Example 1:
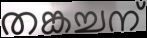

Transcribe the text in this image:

തങ്കച്ചന്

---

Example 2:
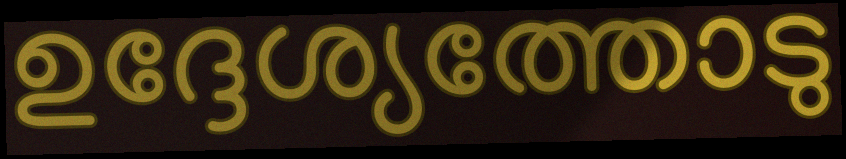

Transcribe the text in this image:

ഉദ്ദേശ്യത്തോടു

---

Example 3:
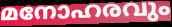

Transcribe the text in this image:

മനോഹരവും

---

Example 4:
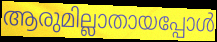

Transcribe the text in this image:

ആരുമില്ലാതായപ്പോൾ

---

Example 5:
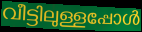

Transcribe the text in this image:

വീട്ടിലുള്ളപ്പോൾ